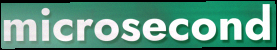
microsecond